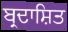
ਬ੍ਰਦਾਸ਼ਿਤ